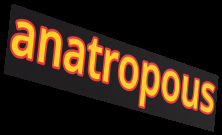
anatropous